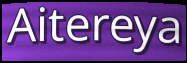
Aitereya